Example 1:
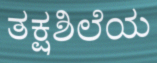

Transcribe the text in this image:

ತಕ್ಷಶಿಲೆಯ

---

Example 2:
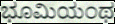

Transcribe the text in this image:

ಭೂಮಿಯಂಥ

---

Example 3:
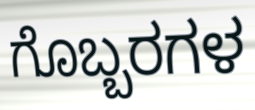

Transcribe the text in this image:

ಗೊಬ್ಬರಗಳ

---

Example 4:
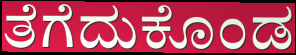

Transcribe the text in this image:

ತೆಗೆದುಕೊಂಡ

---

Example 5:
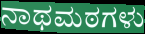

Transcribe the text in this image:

ನಾಥಮಠಗಳು